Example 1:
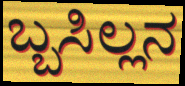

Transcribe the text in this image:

ಬ್ಬಸಿಲ್ಲನ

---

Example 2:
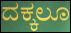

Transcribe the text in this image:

ದಕ್ಕಲೂ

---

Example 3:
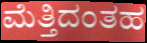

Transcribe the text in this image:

ಮೆತ್ತಿದಂತಹ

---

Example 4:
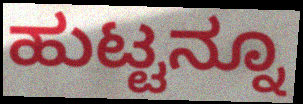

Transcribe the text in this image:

ಹುಟ್ಟನ್ನೂ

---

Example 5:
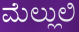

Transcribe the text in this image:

ಮೆಲ್ಲುಲಿ